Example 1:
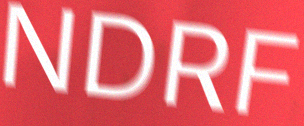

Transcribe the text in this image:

NDRF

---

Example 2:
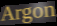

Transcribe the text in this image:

Argon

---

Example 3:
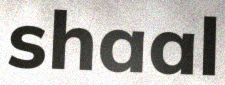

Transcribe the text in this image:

shaal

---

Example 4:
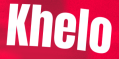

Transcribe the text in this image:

Khelo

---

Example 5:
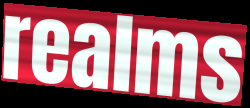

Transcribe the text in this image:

realms